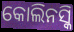
କୋଲିନସ୍କି